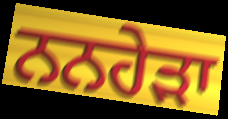
ਨਨਹੇੜਾ